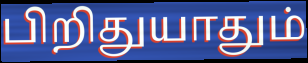
பிறிதுயாதும்